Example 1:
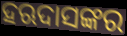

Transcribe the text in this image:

ହଋଦାସଙ୍କର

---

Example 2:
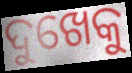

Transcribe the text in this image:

ଦୁଖେକୁ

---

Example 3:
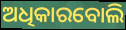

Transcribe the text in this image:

ଅଧିକାରବୋଲି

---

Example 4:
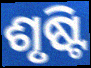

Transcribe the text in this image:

ଶୃଷ୍ଟି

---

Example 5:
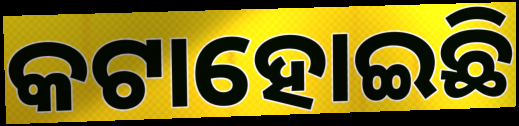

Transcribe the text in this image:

କଟାହୋଇଛି